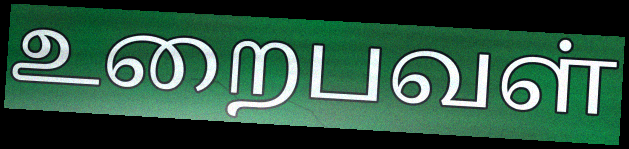
உறைபவள்